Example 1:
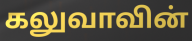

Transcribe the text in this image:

கலுவாவின்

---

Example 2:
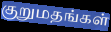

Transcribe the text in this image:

குறுமதங்கள்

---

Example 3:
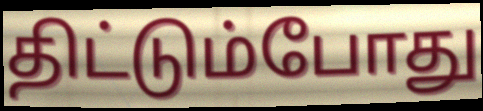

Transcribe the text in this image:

திட்டும்போது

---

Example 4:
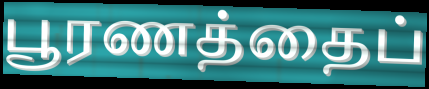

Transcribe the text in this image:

பூரணத்தைப்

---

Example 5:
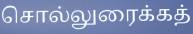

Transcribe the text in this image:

சொல்லுரைக்கத்